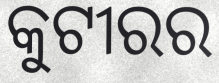
କୁଟୀରର